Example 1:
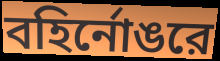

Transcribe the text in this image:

বহির্নোঙরে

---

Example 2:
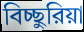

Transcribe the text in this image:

বিচ্ছুরিয়া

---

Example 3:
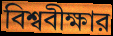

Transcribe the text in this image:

বিশ্ববীক্ষার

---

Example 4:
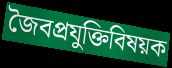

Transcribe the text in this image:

জৈবপ্রযুক্তিবিষয়ক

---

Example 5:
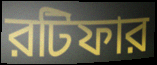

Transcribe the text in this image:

রটিফার